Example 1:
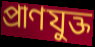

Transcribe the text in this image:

প্রাণযুক্ত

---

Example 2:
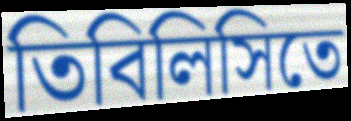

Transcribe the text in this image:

তিবিলিসিতে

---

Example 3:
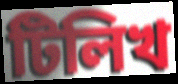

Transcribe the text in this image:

টিলিখ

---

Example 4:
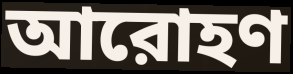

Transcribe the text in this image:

আরোহণ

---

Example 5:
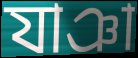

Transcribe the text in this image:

যাঞা